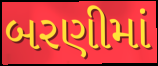
બરણીમાં